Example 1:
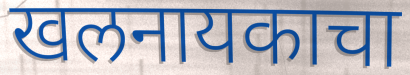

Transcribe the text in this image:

खलनायकाचा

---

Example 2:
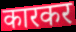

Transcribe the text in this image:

कारकर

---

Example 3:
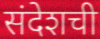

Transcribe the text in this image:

संदेशची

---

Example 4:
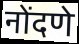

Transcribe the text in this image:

नोंदणे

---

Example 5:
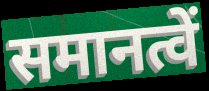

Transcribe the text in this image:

समानत्वें